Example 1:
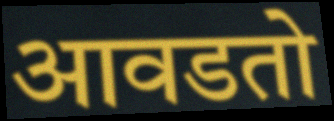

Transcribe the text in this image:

आवडतो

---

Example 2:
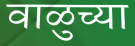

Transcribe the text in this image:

वाळुच्या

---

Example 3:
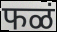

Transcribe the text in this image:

फळं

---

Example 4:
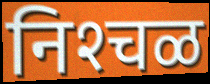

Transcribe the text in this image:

निश्चळ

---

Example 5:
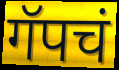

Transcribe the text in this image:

गॅपचं